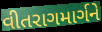
વીતરાગમાર્ગને